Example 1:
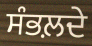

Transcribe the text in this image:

ਸੰਭਲ਼ਦੇ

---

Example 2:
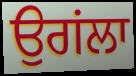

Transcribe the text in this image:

ਉਗਂਲਾ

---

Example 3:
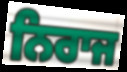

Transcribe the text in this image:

ਨਿਰਾਜ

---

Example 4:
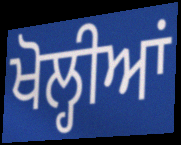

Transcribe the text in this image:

ਖੋਲ੍ਹੀਆਂ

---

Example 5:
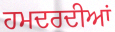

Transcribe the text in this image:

ਹਮਦਰਦੀਆਂ